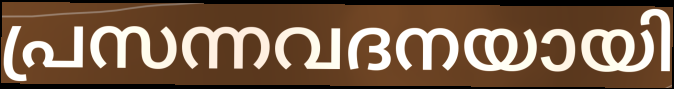
പ്രസന്നവദനയായി